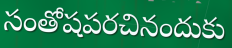
సంతోషపరచినందుకు